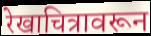
रेखाचित्रावरून